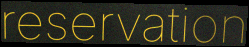
reservation